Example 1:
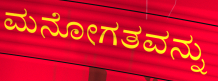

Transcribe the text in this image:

ಮನೋಗತವನ್ನು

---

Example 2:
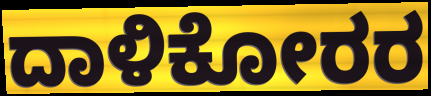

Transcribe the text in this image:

ದಾಳಿಕೋರರ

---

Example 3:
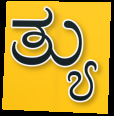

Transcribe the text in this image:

ತ್ಯು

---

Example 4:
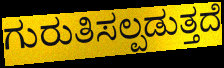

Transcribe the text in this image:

ಗುರುತಿಸಲ್ಪಡುತ್ತದೆ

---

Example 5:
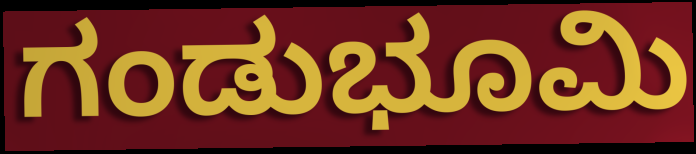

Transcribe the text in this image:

ಗಂಡುಭೂಮಿ